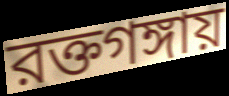
রক্তগঙ্গায়